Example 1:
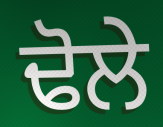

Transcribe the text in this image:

ਢੋਲੇ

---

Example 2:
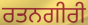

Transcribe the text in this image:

ਰਤਨਗੀਰੀ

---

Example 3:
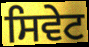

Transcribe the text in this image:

ਸਿਵੇਟ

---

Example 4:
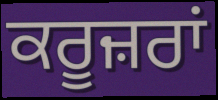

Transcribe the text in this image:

ਕਰੂਜ਼ਰਾਂ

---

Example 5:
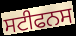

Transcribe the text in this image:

ਸਟੀਫਨਸ